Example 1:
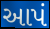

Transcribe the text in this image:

આપં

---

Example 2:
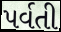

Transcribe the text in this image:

પર્વતી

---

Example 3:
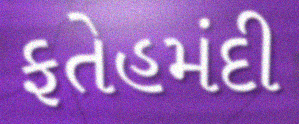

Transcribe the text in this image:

ફતેહમંદી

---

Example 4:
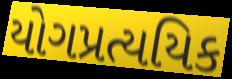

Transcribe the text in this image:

યોગપ્રત્યયિક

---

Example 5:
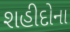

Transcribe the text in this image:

શહીદોના